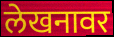
लेखनावर